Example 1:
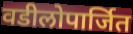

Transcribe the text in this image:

वडीलोपार्जित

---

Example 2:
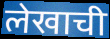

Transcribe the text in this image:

लेखाची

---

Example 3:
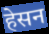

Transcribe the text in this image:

हेसन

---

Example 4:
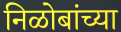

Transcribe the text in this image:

निळोबांच्या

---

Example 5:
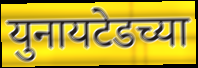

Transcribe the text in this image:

युनायटेडच्या